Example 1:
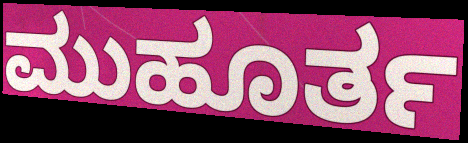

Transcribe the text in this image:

ಮುಹೂರ್ತ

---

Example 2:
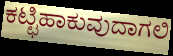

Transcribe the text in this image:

ಕಟ್ಟಿಹಾಕುವುದಾಗಲಿ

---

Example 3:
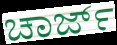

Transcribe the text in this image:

ಚಾರ್ಜ್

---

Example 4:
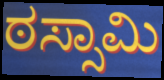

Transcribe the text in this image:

ಠಸ್ಸಾಮಿ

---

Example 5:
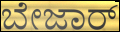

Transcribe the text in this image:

ಬೇಜಾರ್